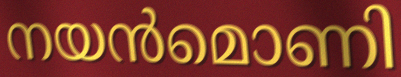
നയൻമൊണി